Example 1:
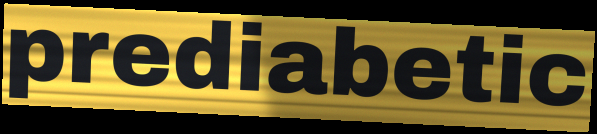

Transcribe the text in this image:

prediabetic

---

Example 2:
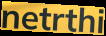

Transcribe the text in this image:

netrthi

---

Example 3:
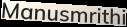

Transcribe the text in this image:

Manusmrithi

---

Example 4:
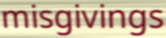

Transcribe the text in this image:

misgivings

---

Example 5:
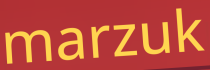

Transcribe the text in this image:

marzuk